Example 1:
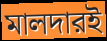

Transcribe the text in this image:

মালদারই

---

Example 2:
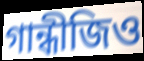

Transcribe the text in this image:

গান্ধীজিও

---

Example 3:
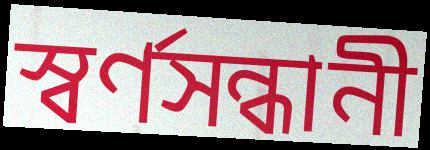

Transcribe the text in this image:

স্বর্ণসন্ধানী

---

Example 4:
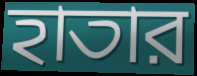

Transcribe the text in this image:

হাতার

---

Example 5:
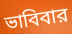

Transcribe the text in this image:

ভাবিবার